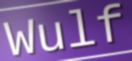
Wulf